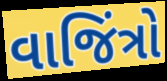
વાજિંત્રો